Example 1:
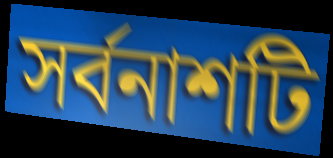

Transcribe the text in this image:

সর্বনাশটি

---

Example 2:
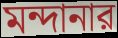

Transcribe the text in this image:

মন্দানার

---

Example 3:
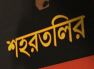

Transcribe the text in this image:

শহরতলির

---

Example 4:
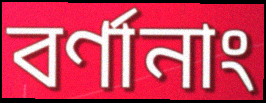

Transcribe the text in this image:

বর্ণানাং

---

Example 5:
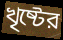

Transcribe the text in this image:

খৃষ্টের